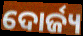
ଦୋର୍ଜ୍ୟ